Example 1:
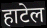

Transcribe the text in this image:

हाटेल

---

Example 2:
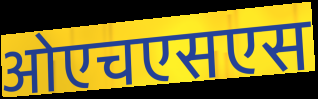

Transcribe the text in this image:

ओएचएसएस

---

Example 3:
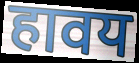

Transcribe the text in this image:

हावय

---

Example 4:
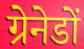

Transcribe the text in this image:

ग्रेनेडों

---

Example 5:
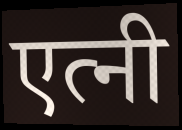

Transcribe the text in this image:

एत्नी